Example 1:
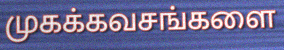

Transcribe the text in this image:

முகக்கவசங்களை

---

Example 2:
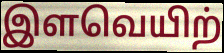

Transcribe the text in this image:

இளவெயிற்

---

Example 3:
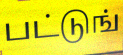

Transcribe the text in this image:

பட்டுங்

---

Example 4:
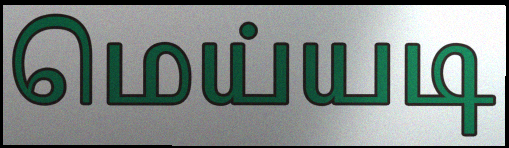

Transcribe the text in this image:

மெய்யடி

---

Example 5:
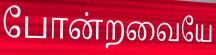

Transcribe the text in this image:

போன்றவையே